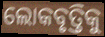
ଲୋକବୃତ୍ତିକୁ